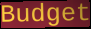
Budget